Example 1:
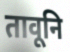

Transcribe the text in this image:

तावूनि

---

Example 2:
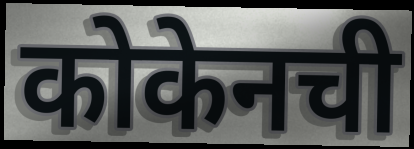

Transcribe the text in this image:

कोकेनची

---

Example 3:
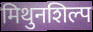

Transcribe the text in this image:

मिथुनशिल्प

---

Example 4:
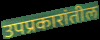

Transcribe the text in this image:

उपप्रकारांतील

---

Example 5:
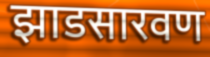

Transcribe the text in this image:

झाडसारवण